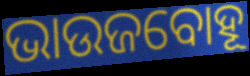
ଭାଉଜବୋହୂ